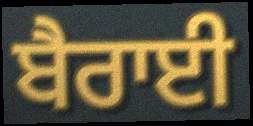
ਬੈਰਾਈ